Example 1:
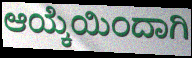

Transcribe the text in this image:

ಆಯ್ಕೆಯಿಂದಾಗಿ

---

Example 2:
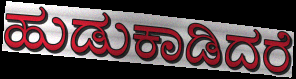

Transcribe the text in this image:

ಹುಡುಕಾಡಿದರೆ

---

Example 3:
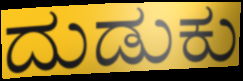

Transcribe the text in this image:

ದುಡುಕು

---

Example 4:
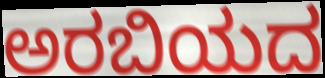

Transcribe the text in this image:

ಅರಬಿಯದ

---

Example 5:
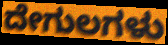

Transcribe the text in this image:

ದೇಗುಲಗಳು